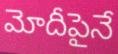
మోదీపైనే